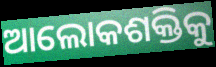
ଆଲୋକଶକ୍ତିକୁ